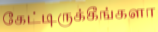
கேட்டிருக்கீங்களா